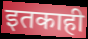
इतकाही